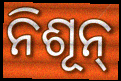
ନିଶୂନ୍